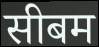
सीबम